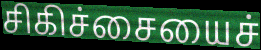
சிகிச்சையைச்